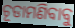
ଚୂଡାମଣିବାବୁ